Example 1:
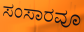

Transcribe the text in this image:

ಸಂಸಾರವೂ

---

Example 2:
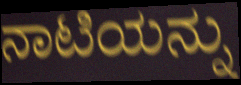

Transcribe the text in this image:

ನಾಟಿಯನ್ನು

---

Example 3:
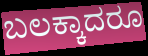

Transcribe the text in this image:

ಬಲಕ್ಕಾದರೂ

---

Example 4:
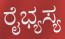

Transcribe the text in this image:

ರೈಭ್ಯಸ್ಯ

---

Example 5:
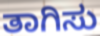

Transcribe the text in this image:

ತಾಗಿಸು